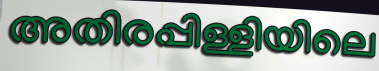
അതിരപ്പിള്ളിയിലെ